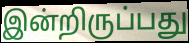
இன்றிருப்பது